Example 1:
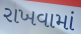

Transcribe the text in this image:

રાખવામાં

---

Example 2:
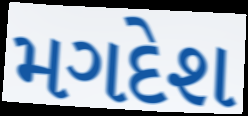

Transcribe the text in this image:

મગદેશ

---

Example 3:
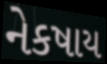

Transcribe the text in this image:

નેકષાય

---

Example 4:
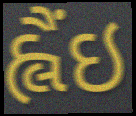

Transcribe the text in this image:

હ્લૈંઇ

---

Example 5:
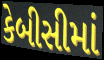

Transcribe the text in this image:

કેબીસીમાં